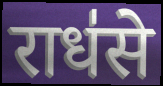
राध॑से